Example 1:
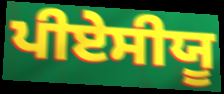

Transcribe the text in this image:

ਪੀਏਸੀਯੂ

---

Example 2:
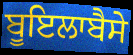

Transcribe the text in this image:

ਬੂਇਲਾਬੈਸੇ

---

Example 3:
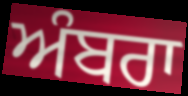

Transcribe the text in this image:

ਅੰਬਰਾ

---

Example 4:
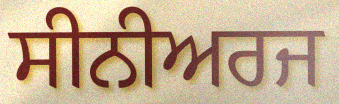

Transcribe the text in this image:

ਸੀਨੀਅਰਜ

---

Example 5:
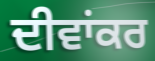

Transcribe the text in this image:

ਦੀਵਾਂਕਰ